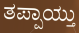
ತಪ್ಪಾಯ್ತು